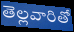
తెల్లవారితో